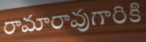
రామారావుగారికి